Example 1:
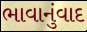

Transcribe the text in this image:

ભાવાનુંવાદ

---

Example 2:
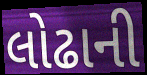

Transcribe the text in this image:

લોઢાની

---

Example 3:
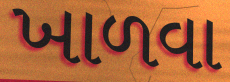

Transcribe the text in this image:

ખાળવા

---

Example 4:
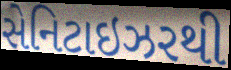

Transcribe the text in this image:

સેનિટાઇઝરથી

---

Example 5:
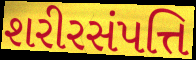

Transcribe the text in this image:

શરીરસંપત્તિ